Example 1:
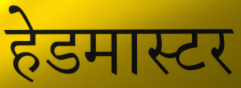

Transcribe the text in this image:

हेडमास्टर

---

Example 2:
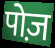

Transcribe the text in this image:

पोज़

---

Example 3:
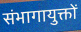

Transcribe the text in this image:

संभागायुक्तों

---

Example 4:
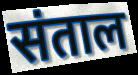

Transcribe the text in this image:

संताल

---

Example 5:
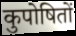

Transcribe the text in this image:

कुपोषितों